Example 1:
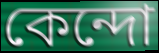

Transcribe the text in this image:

কেন্দো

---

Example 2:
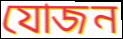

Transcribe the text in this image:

যোজন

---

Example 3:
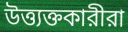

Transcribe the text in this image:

উত্ত্যক্তকারীরা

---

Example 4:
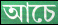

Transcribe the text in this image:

আচে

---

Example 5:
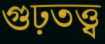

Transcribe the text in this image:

গুঢ়তত্ত্ব